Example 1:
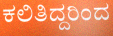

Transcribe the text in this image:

ಕಲಿತಿದ್ದರಿಂದ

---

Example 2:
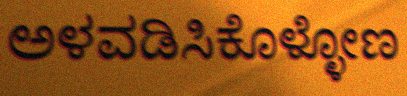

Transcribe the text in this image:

ಅಳವಡಿಸಿಕೊಳ್ಳೋಣ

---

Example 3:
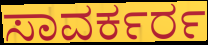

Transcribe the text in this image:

ಸಾವರ್ಕರ್ರ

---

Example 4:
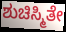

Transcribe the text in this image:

ಶುಚಿಸ್ಮಿತೇ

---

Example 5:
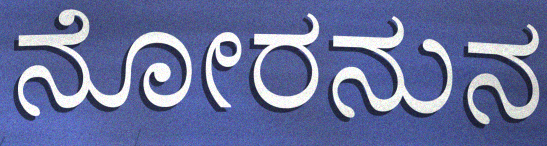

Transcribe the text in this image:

ನೋರನುನ